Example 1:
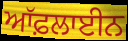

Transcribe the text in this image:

ਆੱਫ਼ਲਾਈਨ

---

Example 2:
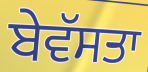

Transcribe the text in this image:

ਬੇਵੱਸਤਾ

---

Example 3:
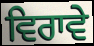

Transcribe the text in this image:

ਵਿਰਾਵੇ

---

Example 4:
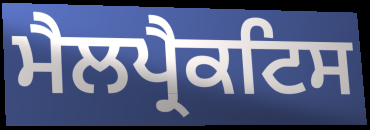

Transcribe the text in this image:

ਮੈਲਪ੍ਰੈਕਟਿਸ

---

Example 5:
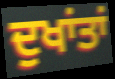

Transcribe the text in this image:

ਦੁਖਾਂਤਾਂ